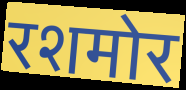
रशमोर